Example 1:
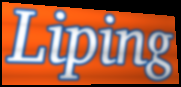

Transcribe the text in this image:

Liping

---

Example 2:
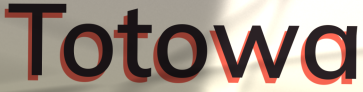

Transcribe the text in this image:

Totowa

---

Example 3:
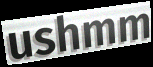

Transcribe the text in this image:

ushmm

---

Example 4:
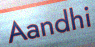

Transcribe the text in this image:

Aandhi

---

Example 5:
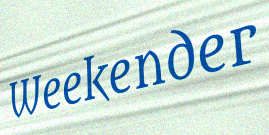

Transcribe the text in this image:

Weekender